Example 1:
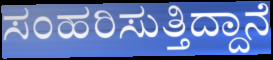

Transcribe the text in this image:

ಸಂಹರಿಸುತ್ತಿದ್ದಾನೆ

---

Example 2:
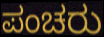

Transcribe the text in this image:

ಪಂಚರು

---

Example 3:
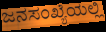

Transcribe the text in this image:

ಜನಸಂಖ್ಯೆಯಲ್ಲಿ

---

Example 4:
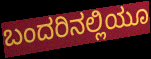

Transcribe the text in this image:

ಬಂದರಿನಲ್ಲಿಯೂ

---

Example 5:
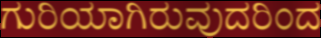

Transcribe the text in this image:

ಗುರಿಯಾಗಿರುವುದರಿಂದ